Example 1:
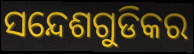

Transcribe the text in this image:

ସନ୍ଦେଶଗୁଡିକର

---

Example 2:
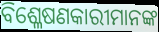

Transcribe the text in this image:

ବିଶ୍ଳେଷଣକାରୀମାନଙ୍କ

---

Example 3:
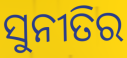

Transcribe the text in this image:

ସୁନୀତିର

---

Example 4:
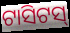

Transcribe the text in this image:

ଟାସିଟସ୍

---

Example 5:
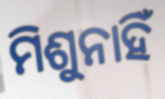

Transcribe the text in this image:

ମିଶୁନାହିଁ